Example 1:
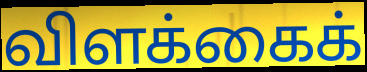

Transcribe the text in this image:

விளக்கைக்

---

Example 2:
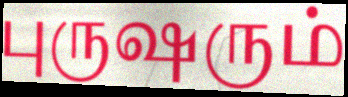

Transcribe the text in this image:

புருஷரும்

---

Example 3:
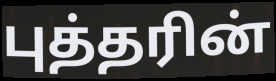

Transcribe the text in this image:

புத்தரின்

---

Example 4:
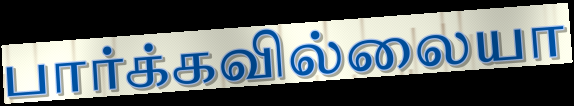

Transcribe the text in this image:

பார்க்கவில்லையா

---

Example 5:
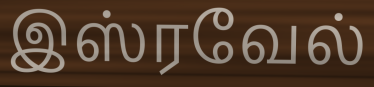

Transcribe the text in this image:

இஸ்ரவேல்